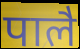
पालै